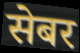
सेबर